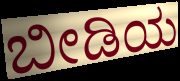
ಬೀಡಿಯ